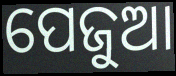
ପେଜୁଆ